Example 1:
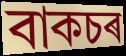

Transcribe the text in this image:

বাকচৰ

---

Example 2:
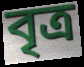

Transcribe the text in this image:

বৃত্ৰ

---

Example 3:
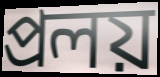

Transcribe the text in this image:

প্ৰলয়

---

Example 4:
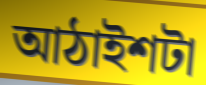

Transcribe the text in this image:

আঠাইশটা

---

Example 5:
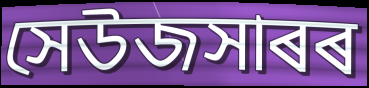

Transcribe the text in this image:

সেউজসাৰৰ